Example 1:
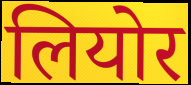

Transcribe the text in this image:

लियोर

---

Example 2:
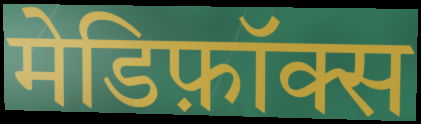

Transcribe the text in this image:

मेडिफ़ॉक्स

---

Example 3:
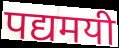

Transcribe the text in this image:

पद्यमयी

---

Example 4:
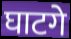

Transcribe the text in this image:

घाटगे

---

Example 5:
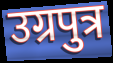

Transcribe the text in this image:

उग्रपुत्र